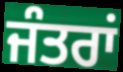
ਜੰਤਰਾਂ